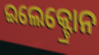
ଇଲେକ୍ଟ୍ରୋନ